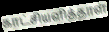
காட்சியளித்தாள்